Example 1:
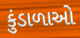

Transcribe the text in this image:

કુંડાળાઓ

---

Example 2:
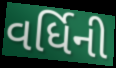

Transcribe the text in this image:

વર્ધિની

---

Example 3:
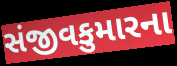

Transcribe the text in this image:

સંજીવકુમારના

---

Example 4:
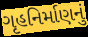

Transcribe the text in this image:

ગૃહનિર્માણનું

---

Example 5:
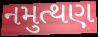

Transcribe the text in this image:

નમુત્થણ